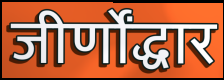
जीर्णोंद्धार